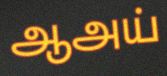
ஆஅய்